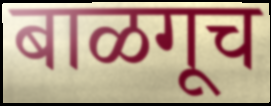
बाळगूच